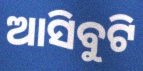
ଆସିବୁଟି